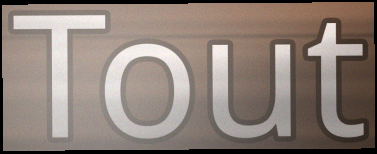
Tout